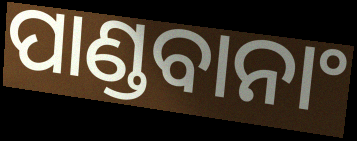
ପାଣ୍ଡବାନାଂ